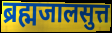
ब्रह्मजालसुत्त